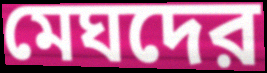
মেঘদের